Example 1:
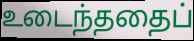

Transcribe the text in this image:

உடைந்ததைப்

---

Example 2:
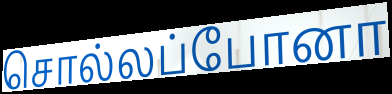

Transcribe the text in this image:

சொல்லப்போனா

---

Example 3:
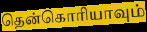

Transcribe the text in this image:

தென்கொரியாவும்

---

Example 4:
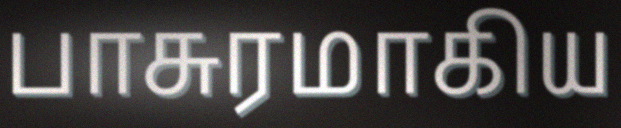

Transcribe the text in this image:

பாசுரமாகிய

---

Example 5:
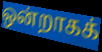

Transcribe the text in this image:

ஒன்றாகக்